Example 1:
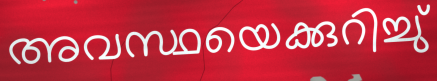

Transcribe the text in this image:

അവസ്ഥയെക്കുറിച്ചു്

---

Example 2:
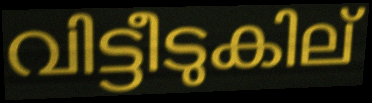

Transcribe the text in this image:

വിട്ടീടുകില്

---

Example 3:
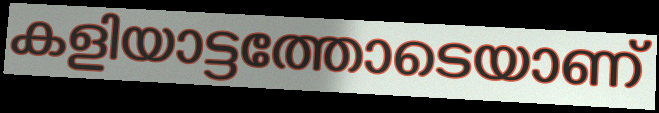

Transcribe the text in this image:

കളിയാട്ടത്തോടെയാണ്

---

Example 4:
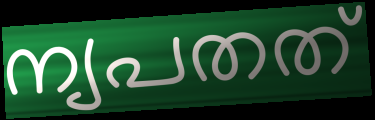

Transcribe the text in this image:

ന്യപതത്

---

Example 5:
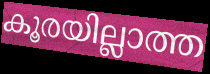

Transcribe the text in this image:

കൂരയില്ലാത്ത